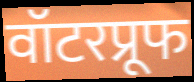
वॉटरप्रूफ